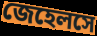
জেহেলসে